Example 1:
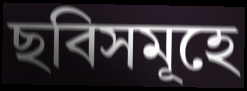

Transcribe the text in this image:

ছবিসমূহে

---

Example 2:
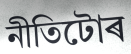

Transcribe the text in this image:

নীতিটোৰ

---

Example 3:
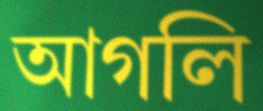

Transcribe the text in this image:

আগলি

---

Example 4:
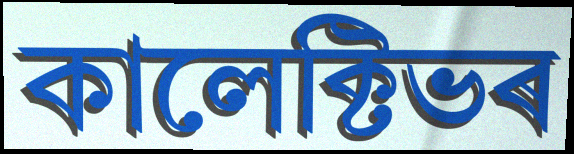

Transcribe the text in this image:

কালেক্টিভৰ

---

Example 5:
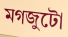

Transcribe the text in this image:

মগজুটো